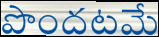
పొందటమే